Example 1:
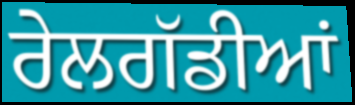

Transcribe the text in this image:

ਰੇਲਗੱਡੀਆਂ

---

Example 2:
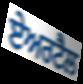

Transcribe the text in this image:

ਏਅਰਟੈਲ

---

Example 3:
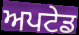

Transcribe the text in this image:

ਅਪਟੇਡ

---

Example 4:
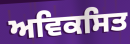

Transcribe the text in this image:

ਅਵਿਕਸਿਤ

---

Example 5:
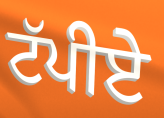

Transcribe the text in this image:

ਟੱਪੀਏ